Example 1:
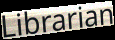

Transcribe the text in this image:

Librarian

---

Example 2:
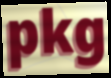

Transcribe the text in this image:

pkg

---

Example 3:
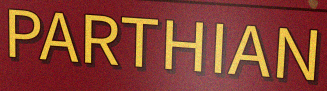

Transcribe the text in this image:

PARTHIAN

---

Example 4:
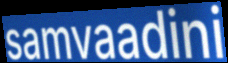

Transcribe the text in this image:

samvaadini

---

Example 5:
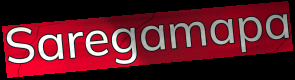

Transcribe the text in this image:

Saregamapa